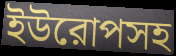
ইউরোপসহ